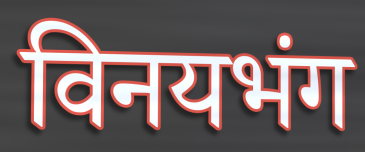
विनयभंग